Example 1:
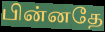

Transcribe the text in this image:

பின்னதே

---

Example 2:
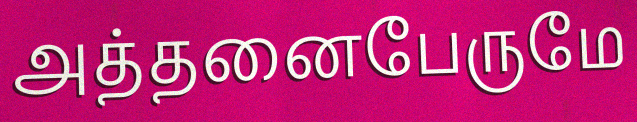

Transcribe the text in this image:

அத்தனைபேருமே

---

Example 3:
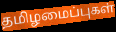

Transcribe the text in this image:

தமிழமைப்புகள்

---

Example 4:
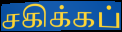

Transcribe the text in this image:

சகிக்கப்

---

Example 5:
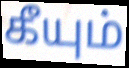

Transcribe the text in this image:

கீயும்